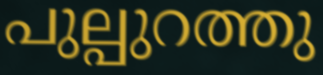
പുല്പുറത്തു